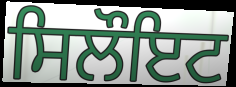
ਸਿਲੌਇਟ